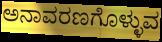
ಅನಾವರಣಗೊಳ್ಳುವ